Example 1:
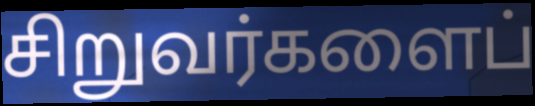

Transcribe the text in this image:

சிறுவர்களைப்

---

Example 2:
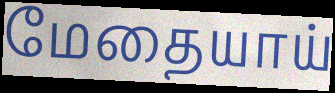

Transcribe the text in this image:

மேதையாய்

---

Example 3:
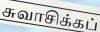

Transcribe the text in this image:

சுவாசிக்கப்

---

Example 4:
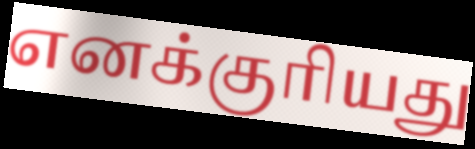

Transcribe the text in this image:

எனக்குரியது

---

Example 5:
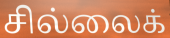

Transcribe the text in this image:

சில்லைக்